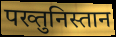
पख्तुनिस्तान